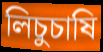
লিচুচাষি